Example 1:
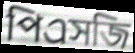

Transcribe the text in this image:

পিএসজি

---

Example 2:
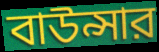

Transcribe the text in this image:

বাউন্সার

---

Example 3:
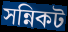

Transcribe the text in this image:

সন্নিকট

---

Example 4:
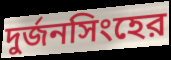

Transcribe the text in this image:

দুর্জনসিংহের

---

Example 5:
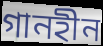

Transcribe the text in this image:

গানহীন